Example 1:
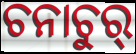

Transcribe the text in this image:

ଚନାଚୁର୍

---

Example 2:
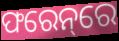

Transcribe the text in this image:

ଫରେନ୍‌ରେ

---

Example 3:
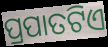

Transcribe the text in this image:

ପ୍ରପାତଟିଏ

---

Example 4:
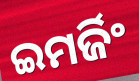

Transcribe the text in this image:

ଇମର୍ଜିଂ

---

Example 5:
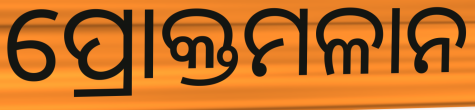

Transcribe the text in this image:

ପ୍ରୋକ୍ତମଳାନ